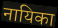
नायिका